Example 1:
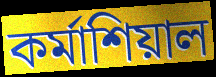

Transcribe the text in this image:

কর্মাশিয়াল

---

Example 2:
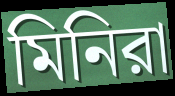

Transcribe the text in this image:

মিনিরা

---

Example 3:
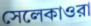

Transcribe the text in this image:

সেলেকাওরা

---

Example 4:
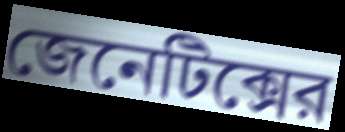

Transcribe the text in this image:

জেনেটিক্সের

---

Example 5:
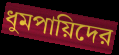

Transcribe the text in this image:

ধুমপায়িদের